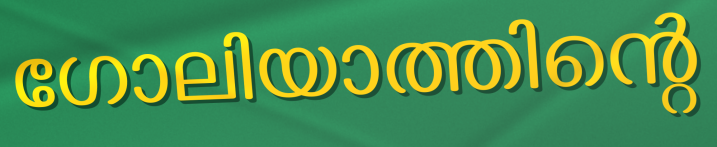
ഗോലിയാത്തിന്റെ